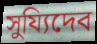
সুয্যিদেব